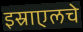
इस्राएलचे